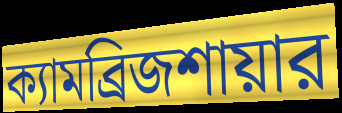
ক্যামব্রিজশায়ার